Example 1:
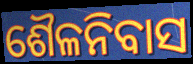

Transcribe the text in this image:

ଶୈଳନିବାସ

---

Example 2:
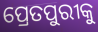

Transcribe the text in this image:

ପ୍ରେତପୁରୀକୁ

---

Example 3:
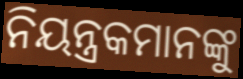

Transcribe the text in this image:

ନିୟନ୍ତ୍ରକମାନଙ୍କୁ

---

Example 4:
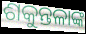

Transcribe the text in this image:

ଶକୁନ୍ତଳାଙ୍କ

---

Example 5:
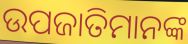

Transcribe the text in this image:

ଉପଜାତିମାନଙ୍କ